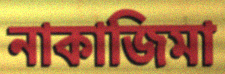
নাকাজিমা